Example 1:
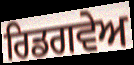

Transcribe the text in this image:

ਰਿਡਗਵੇਅ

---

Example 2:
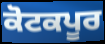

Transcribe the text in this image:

ਕੋਟਕਪੂਰ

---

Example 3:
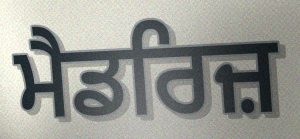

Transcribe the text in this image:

ਮੈਡਰਿਜ਼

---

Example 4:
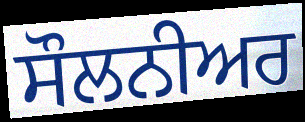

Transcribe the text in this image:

ਸੌਲਨੀਅਰ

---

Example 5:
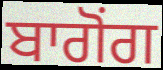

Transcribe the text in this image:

ਬਾਗੋਂਗ